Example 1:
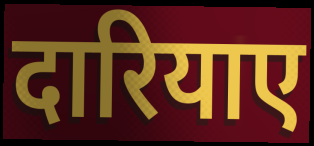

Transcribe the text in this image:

दारियाए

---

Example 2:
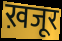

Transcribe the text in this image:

ख़जूर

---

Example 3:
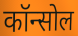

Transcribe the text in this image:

कॉन्सोल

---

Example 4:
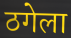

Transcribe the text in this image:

ठगेला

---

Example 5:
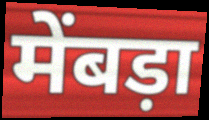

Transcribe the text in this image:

मेंबड़ा